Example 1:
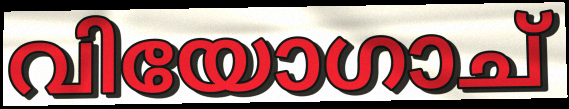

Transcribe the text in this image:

വിയോഗാച്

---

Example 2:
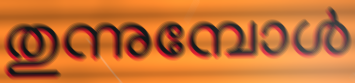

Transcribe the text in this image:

തുന്നുമ്പോൾ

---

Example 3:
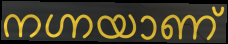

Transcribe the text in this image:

നഗ്നയാണ്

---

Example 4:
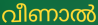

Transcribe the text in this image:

വീണാൽ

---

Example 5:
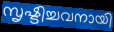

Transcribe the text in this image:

സൃഷ്ടിച്ചവനായി